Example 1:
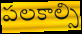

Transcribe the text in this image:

పలకాల్సి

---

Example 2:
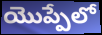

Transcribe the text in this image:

యొప్పేలో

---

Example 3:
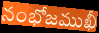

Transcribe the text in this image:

నంభోజముఖీ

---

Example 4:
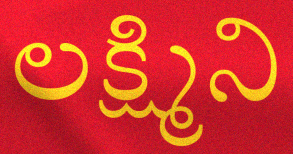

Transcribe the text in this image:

లక్ష్మిని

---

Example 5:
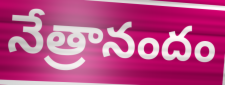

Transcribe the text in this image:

నేత్రానందం